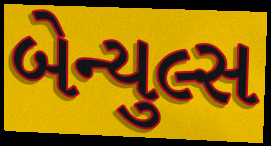
બેન્યુલ્સ